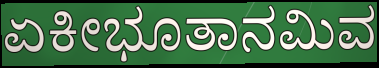
ಏಕೀಭೂತಾನಮಿವ